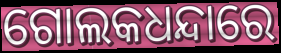
ଗୋଲକଧନ୍ଦାରେ